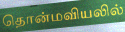
தொன்மவியலில்